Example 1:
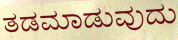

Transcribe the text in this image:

ತಡಮಾಡುವುದು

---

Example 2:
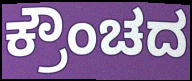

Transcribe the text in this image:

ಕ್ರೌಂಚದ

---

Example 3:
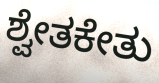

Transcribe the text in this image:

ಶ್ವೇತಕೇತು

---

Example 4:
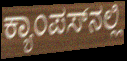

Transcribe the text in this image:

ಕ್ಯಾಂಪಸ್‌ನಲ್ಲಿ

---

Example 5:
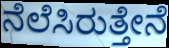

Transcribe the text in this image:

ನೆಲೆಸಿರುತ್ತೇನೆ